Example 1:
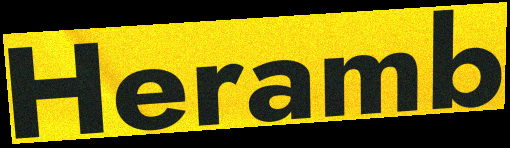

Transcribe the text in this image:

Heramb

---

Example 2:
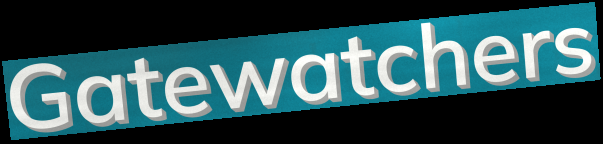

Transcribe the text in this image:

Gatewatchers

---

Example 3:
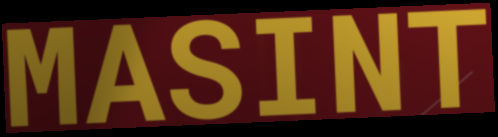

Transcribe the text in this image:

MASINT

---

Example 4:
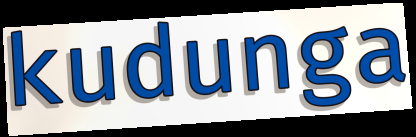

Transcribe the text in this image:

kudunga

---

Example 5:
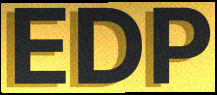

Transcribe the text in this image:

EDP